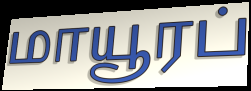
மாயூரப்